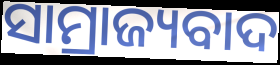
ସାମ୍ରାଜ୍ୟବାଦ